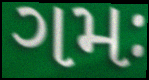
ગમઃ